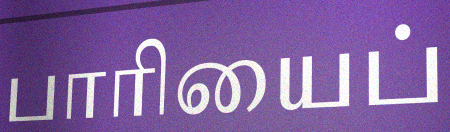
பாரியைப்